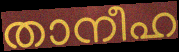
താനീഹ